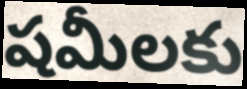
షమీలకు